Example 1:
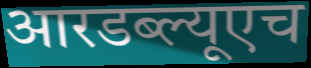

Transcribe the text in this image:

आरडब्ल्यूएच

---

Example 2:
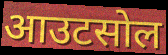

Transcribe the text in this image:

आउटसोल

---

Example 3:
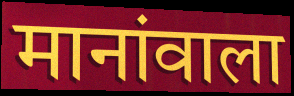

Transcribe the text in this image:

मानांवाला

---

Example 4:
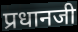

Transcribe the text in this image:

प्रधानजी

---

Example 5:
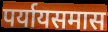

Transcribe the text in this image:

पर्यायसमास